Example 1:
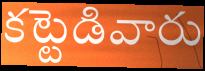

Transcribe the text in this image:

కట్టెడివారు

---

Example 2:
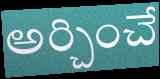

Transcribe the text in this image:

అర్చించే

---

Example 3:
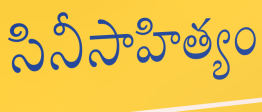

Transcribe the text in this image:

సినీసాహిత్యం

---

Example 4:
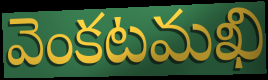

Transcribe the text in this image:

వెంకటమఖి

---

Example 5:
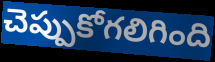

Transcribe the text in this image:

చెప్పుకోగలిగింది